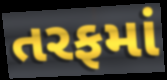
તરફમાં